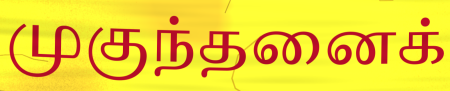
முகுந்தனைக்